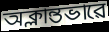
অক্লান্তভাৱে